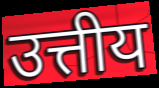
उत्तीय